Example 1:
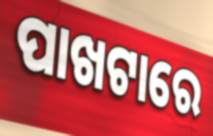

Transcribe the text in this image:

ପାଖଟାରେ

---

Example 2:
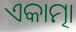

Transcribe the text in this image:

ଏକାତ୍ମା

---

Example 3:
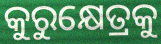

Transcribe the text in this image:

କୁରୁକ୍ଷେତ୍ରକୁ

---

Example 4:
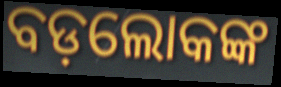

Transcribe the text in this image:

ବଡ଼ଲୋକଙ୍କ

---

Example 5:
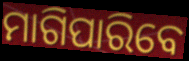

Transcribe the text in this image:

ମାଗିପାରିବେ